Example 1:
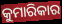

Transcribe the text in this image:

କୁମାରିକାର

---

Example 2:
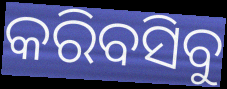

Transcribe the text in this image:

କରିବସିବୁ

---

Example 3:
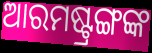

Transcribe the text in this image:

ଆରମଷ୍ଟ୍ରଙ୍ଗଙ୍କ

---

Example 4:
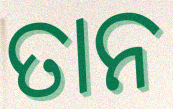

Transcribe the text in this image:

ତାନ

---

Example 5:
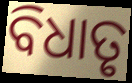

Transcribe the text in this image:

ବିଧାତୃ